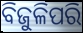
ବିଜୁଳିପରି